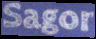
Sagor